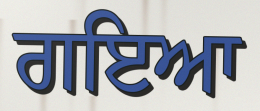
ਗਇਆ